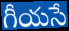
గీయసే